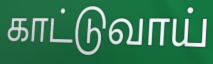
காட்டுவாய்